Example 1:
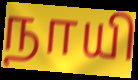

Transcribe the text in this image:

நாயி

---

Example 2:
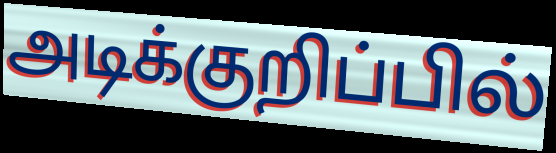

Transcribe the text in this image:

அடிக்குறிப்பில்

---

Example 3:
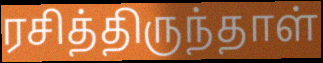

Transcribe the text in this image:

ரசித்திருந்தாள்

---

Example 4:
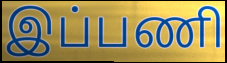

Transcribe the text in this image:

இப்பணி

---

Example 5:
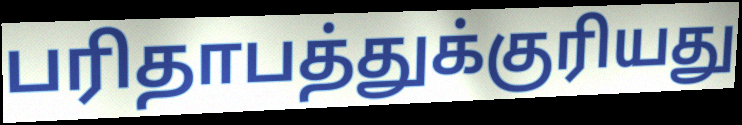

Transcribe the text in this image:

பரிதாபத்துக்குரியது